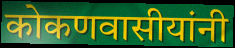
कोकणवासीयांनी